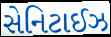
સેનિટાઈઝ